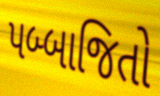
પબ્બાજિતો